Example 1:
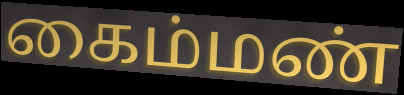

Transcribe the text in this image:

கைம்மண்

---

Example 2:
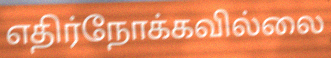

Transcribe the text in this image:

எதிர்நோக்கவில்லை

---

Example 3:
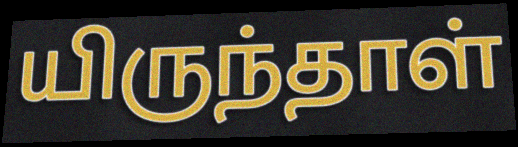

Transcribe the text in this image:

யிருந்தாள்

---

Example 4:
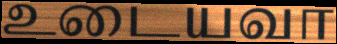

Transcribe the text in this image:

உடையவா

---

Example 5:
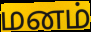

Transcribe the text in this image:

மனம்